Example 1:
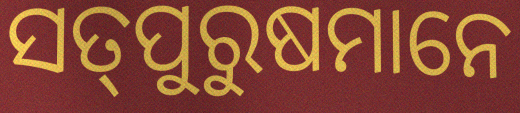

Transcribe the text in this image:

ସତ୍‌ପୁରୁଷମାନେ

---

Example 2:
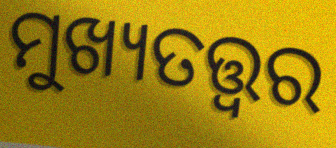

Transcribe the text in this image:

ମୁଖ୍ୟତତ୍ତ୍ୱର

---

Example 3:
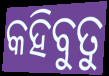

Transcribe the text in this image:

କହିବୁତୁ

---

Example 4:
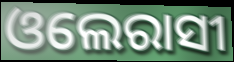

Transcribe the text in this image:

ଓଲେରାସୀ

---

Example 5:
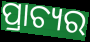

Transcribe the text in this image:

ପ୍ରାଚ୍ୟର